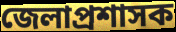
জেলাপ্রশাসক